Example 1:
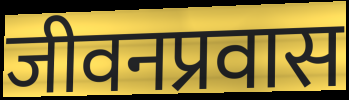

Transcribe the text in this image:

जीवनप्रवास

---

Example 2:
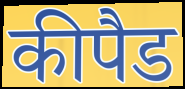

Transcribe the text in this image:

कीपैड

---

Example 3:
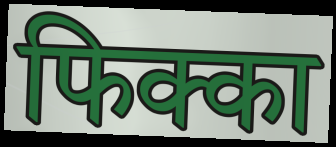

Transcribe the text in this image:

फिक्का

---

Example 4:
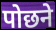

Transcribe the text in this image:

पोछने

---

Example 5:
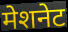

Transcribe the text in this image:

मेशनेट